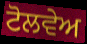
ਟੋਲਵੇਅ